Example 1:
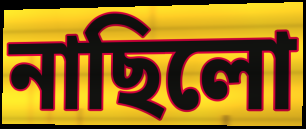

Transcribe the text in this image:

নাছিলো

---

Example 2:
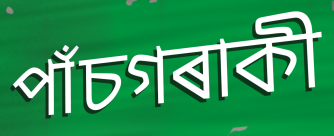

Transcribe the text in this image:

পাঁচগৰাকী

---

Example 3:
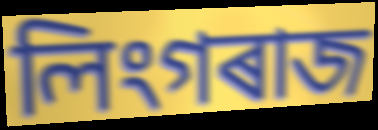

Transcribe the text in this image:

লিংগৰাজ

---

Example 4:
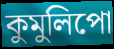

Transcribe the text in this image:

কুমুলিপো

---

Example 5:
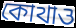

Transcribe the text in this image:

কোথাও